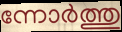
ന്നോർത്തു